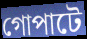
গোপাটে